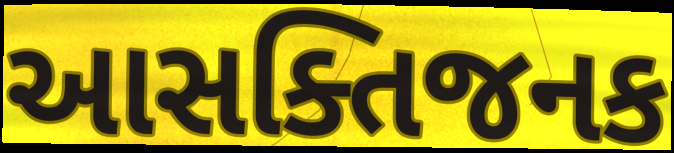
આસક્તિજનક